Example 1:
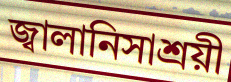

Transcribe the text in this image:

জ্বালানিসাশ্রয়ী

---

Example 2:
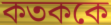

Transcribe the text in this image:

কতককে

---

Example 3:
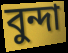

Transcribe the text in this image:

বুন্দা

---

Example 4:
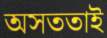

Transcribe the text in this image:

অসততাই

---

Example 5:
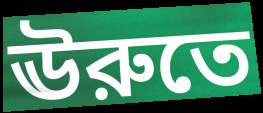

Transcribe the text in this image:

ঊরুতে